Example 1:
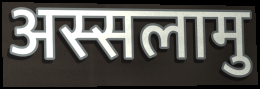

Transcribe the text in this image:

अस्सलामु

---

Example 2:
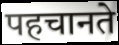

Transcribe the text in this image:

पहचानते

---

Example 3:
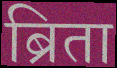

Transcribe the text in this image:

ब्रिता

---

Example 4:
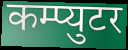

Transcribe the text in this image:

कम्प्युटर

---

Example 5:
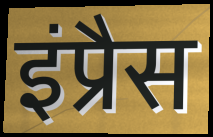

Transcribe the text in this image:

इंप्रैस